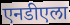
एनडीएला